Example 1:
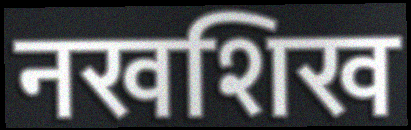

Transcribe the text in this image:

नखशिख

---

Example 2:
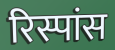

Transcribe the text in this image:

रिस्पांस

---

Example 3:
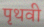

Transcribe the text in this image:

पृथवी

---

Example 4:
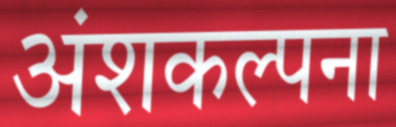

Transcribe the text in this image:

अंशकल्पना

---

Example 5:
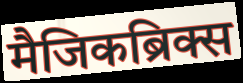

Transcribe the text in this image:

मैजिकब्रिक्स